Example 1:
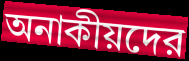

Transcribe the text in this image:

অনাকীয়দের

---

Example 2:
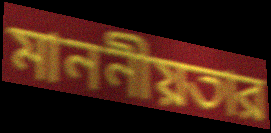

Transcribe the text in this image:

মাননীয়তার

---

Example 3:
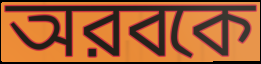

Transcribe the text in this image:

অরবকে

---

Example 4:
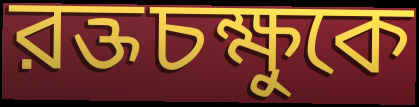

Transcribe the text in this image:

রক্তচক্ষুকে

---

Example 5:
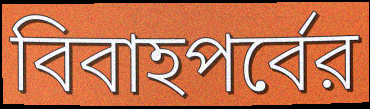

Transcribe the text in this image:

বিবাহপর্বের